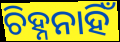
ଚିହ୍ନନାହିଁ